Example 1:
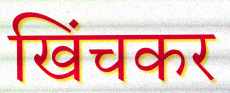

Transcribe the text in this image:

खिंचकर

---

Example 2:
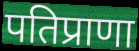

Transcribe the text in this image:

पतिप्राणा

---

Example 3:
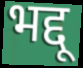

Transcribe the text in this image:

भद्दू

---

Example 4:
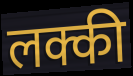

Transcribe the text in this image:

लक्की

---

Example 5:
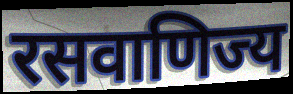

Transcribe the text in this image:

रसवाणिज्य